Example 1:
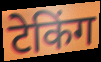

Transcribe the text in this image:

टेकिंग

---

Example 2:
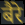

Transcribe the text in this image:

बैरे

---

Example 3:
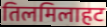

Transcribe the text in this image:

तिलमिलाहट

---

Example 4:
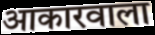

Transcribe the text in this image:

आकारवाला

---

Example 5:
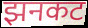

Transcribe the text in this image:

झनकट